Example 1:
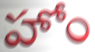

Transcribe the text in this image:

హోం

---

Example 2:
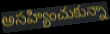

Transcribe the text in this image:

అసహ్యించుకున్నా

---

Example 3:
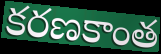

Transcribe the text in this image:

కరణకాంత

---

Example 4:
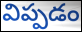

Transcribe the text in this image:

విప్పడం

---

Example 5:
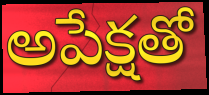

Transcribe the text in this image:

అపేక్షతో